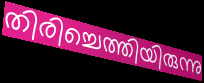
തിരിച്ചെത്തിയിരുന്നു